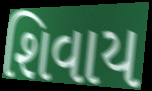
શિવાય